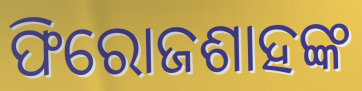
ଫିରୋଜଶାହଙ୍କ